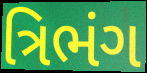
ત્રિભંગ